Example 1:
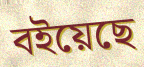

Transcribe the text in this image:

বইয়েছে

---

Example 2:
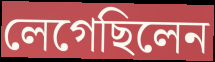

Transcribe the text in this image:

লেগেছিলেন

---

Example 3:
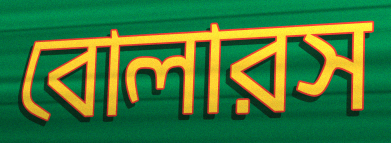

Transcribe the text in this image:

বোলারস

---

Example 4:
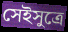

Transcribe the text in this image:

সেইসুত্রে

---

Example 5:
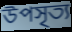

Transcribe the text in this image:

উপসৃত্য